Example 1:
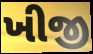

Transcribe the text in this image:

ખીજી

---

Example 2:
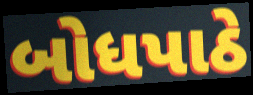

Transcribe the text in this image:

બોધપાઠે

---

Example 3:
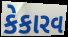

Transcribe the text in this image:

કેકારવ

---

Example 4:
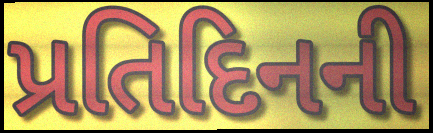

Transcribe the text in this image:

પ્રતિદિનની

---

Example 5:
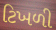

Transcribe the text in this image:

ટિખળી